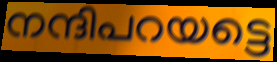
നന്ദിപറയട്ടെ